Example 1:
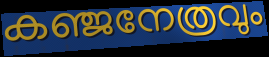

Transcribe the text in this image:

കഞ്ജനേത്രവും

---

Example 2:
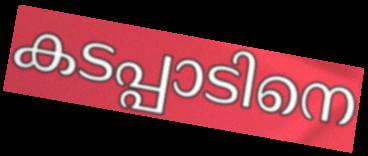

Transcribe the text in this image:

കടപ്പാടിനെ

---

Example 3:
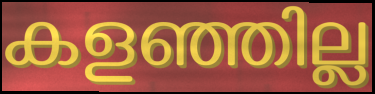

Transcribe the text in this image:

കളഞ്ഞില്ല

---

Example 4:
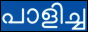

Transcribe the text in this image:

പാളിച്ച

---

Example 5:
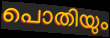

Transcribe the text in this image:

പൊതിയും